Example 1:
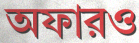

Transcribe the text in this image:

অফারও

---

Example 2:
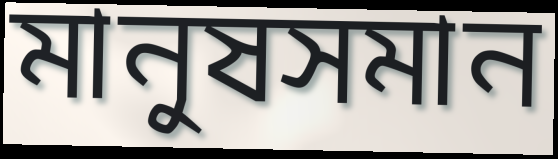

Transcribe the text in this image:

মানুষসমান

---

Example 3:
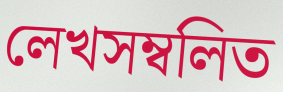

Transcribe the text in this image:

লেখসম্বলিত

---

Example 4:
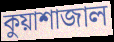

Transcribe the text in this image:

কুয়াশাজাল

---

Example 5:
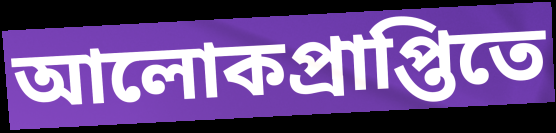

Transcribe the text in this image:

আলোকপ্রাপ্তিতে